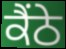
ਕੈਂਠੇ